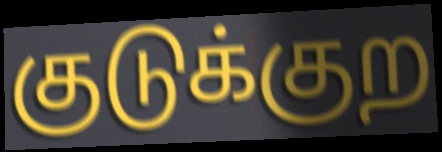
குடுக்குற